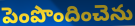
పెంపొందించెను